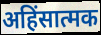
अहिंसात्मक